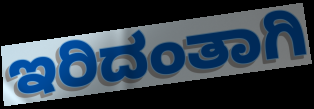
ಇರಿದಂತಾಗಿ